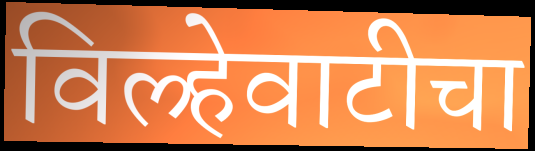
विल्हेवाटीचा